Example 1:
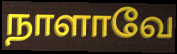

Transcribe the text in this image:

நாளாவே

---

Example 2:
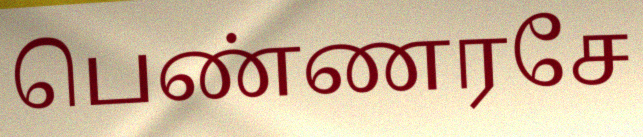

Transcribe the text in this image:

பெண்ணரசே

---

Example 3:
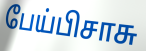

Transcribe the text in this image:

பேய்பிசாசு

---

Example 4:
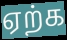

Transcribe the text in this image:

ஏற்க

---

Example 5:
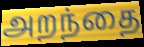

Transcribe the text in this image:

அறந்தை